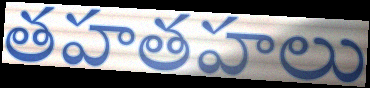
తహతహలు